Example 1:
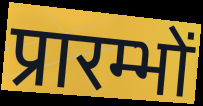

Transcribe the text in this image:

प्रारम्भों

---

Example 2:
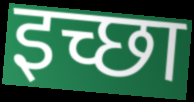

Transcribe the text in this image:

इच्‍छा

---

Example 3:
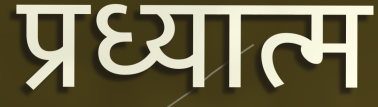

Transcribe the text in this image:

प्रध्यात्म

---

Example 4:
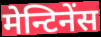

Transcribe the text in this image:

मेन्टिनेंस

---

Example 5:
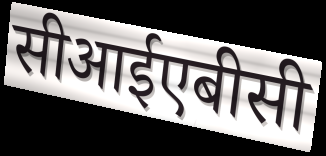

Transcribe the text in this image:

सीआईएबीसी